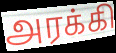
அரக்கி